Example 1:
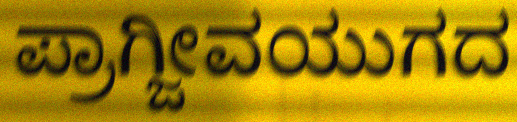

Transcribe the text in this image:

ಪ್ರಾಗ್ಜೀವಯುಗದ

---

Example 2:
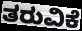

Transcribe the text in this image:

ತರುವಿಕೆ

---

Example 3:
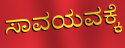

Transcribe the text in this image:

ಸಾವಯವಕ್ಕೆ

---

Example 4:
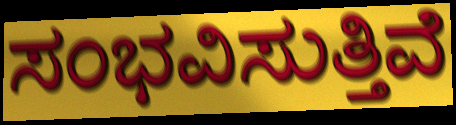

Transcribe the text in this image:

ಸಂಭವಿಸುತ್ತಿವೆ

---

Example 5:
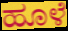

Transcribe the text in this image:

ಹೂಳೆ